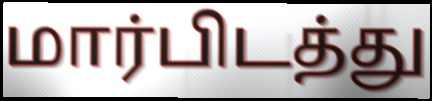
மார்பிடத்து